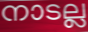
നാടല്ല